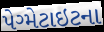
પેગ્મેટાઇટના